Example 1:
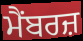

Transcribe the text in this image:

ਮੈਂਬਰਜ਼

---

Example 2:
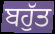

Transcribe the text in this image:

ਬਹੁੱਤ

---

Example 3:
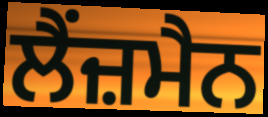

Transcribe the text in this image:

ਲੈਂਜ਼ਮੈਨ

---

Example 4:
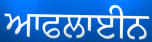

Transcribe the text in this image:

ਆਫਲਾਈਨ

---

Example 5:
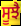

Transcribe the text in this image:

ਸੂਝੈ